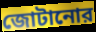
জোটানোর